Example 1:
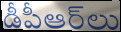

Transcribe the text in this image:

డీపీఆర్‌లు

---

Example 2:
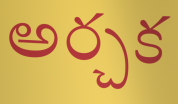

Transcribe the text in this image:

అర్చక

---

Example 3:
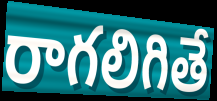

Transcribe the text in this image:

రాగలిగితే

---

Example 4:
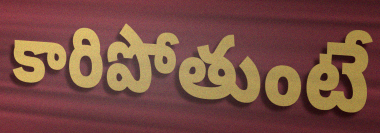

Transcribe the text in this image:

కారిపోతుంటే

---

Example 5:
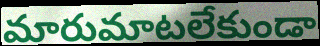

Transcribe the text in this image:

మారుమాటలేకుండా